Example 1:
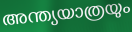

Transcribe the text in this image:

അന്ത്യയാത്രയും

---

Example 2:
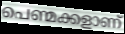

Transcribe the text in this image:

പെണ്മക്കളാണ്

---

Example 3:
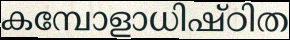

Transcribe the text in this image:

കമ്പോളാധിഷ്ഠിത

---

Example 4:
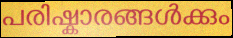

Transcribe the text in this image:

പരിഷ്കാരങ്ങൾക്കും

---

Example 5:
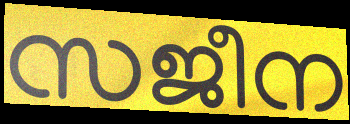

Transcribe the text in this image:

സജീന